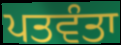
ਪਤਵੰਤਾ